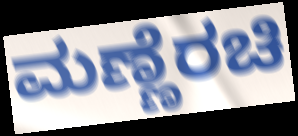
ಮಣ್ಣೆರಚಿ